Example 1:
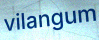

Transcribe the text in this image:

vilangum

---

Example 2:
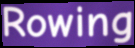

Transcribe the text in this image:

Rowing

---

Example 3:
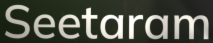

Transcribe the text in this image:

Seetaram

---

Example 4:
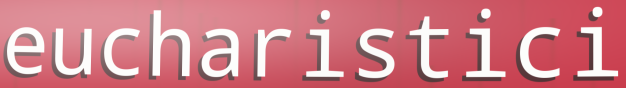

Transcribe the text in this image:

eucharistici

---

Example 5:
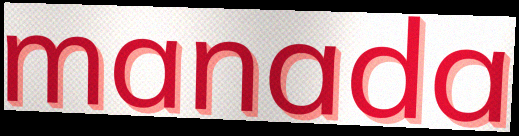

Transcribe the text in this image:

manada